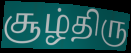
சூழ்திரு